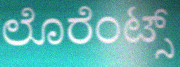
ಲೊರೆಂಟ್ಸ್